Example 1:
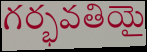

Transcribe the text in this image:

గర్భవతియై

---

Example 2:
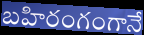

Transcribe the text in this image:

బహిరంగంగానే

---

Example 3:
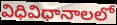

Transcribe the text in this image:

విధివిధానాలలో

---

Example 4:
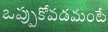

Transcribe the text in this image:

ఒప్పుకోవడమంటే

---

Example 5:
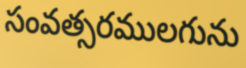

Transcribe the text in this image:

సంవత్సరములగును